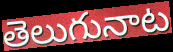
తెలుగునాట